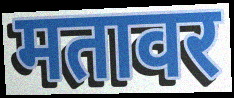
मतावर